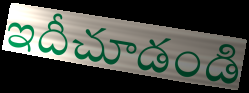
ఇదీచూడండి